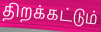
திறக்கட்டும்